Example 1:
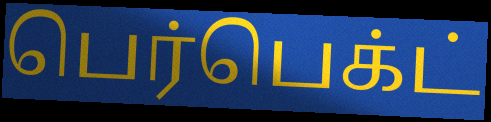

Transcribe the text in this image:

பெர்பெக்ட்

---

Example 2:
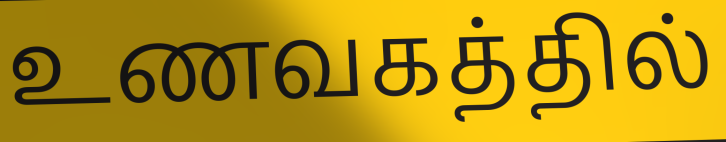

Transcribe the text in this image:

உணவகத்தில்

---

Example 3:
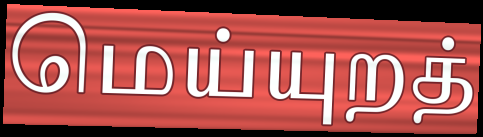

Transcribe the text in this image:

மெய்யுறத்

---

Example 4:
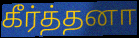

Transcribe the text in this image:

கீர்த்தனா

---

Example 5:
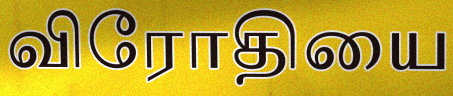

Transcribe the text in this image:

விரோதியை